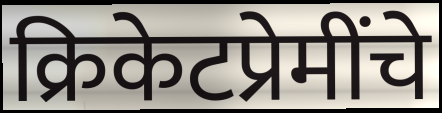
क्रिकेटप्रेमींचे